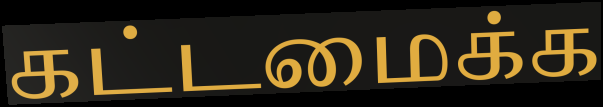
கட்டமைக்க